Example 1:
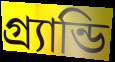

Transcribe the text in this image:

গ্র্যান্ডি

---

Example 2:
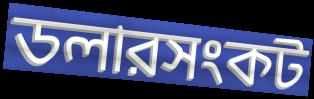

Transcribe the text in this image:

ডলারসংকট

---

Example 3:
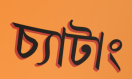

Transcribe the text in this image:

চ্যাটাং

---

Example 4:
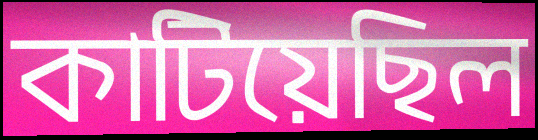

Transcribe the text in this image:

কাটিয়েছিল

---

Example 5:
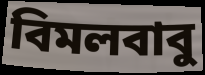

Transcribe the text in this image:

বিমলবাবু